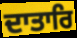
ਦਾਤਾਰਿ